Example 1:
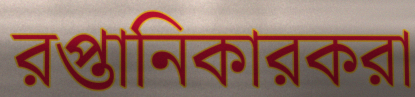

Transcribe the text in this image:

রপ্তানিকারকরা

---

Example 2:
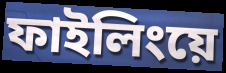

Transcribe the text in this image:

ফাইলিংয়ে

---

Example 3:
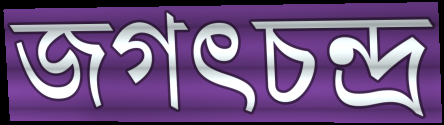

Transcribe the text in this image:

জগৎচন্দ্র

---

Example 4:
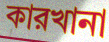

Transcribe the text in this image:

কারখানা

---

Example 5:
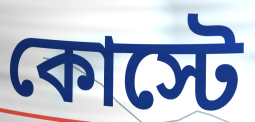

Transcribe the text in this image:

কোস্টে